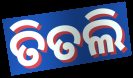
ତିତଲି